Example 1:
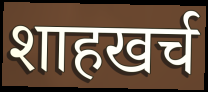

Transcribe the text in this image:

शाहखर्च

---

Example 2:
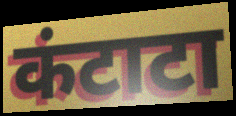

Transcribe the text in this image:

कंटाटा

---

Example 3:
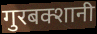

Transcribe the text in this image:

गुरबक्शानी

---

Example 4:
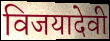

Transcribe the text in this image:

विजयादेवी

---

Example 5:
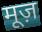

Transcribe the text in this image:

मूज़